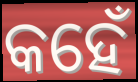
କହେଁ